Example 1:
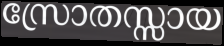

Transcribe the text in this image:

സ്രോതസ്സായ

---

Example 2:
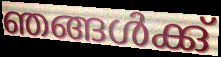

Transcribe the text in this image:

ഞങ്ങൾക്കു്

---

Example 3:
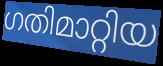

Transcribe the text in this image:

ഗതിമാറ്റിയ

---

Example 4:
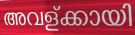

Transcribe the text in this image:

അവള്ക്കായി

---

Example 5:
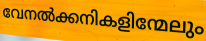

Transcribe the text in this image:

വേനൽക്കനികളിന്മേലും